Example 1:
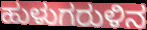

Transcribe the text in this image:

ಹುಳುಗರುಳಿನ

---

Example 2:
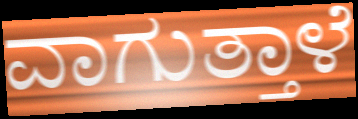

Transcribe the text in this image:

ವಾಗುತ್ತಾಳೆ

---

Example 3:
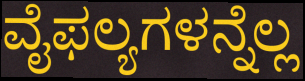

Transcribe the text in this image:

ವೈಫಲ್ಯಗಳನ್ನೆಲ್ಲ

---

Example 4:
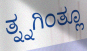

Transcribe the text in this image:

ತ್ನ್ನಗಿಂತ್ಲೂ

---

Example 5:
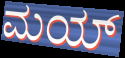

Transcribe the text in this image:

ಮಯ್